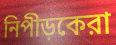
নিপীড়কেরা